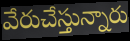
వేరుచేస్తున్నారు